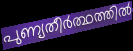
പുണ്യതീർത്ഥത്തിൽ